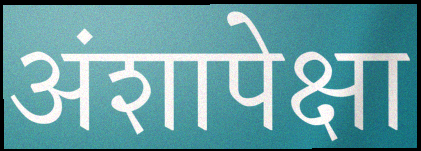
अंशापेक्षा